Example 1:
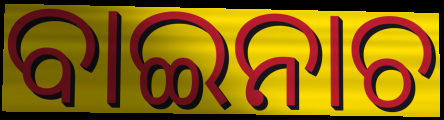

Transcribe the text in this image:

ବାଇନାଚ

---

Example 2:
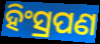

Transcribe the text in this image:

ହିଂସ୍ରପଣ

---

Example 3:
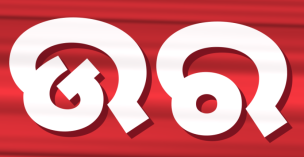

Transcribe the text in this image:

ଉର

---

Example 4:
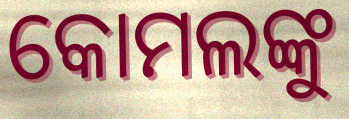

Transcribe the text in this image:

କୋମଲଙ୍କୁ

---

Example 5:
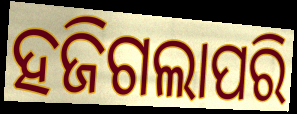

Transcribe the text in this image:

ହଜିଗଲାପରି